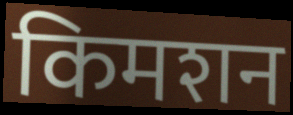
किमशन